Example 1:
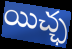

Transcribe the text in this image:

యిచ్ఛ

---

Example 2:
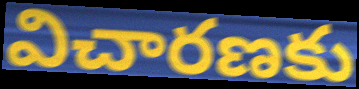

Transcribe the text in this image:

విచారణకు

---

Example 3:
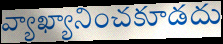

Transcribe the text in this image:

వ్యాఖ్యానించకూడదు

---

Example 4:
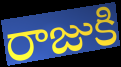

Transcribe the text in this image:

రాజుకి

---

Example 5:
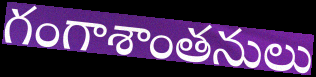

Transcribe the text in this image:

గంగాశాంతనులు